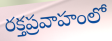
రక్తప్రవాహంలో